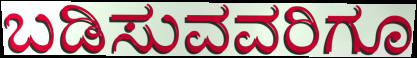
ಬಡಿಸುವವರಿಗೂ